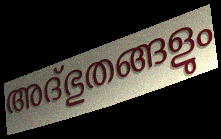
അദ്ഭുതങ്ങളും